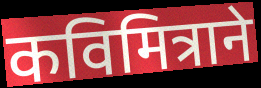
कविमित्राने